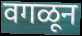
वगळून